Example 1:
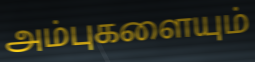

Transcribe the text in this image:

அம்புகளையும்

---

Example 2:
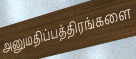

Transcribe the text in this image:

அனுமதிப்பத்திரங்களை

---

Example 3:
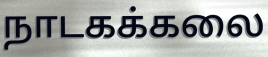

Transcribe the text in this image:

நாடகக்கலை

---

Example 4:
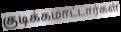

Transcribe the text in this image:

குடிக்கமாட்டார்கள்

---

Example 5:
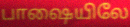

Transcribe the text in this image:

பாஷையிலே